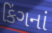
કિંગનાં